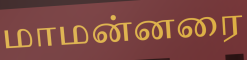
மாமன்னரை